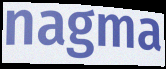
nagma